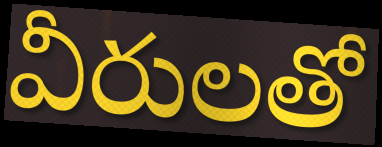
వీరులతో